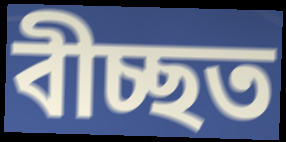
বীচ্ছত